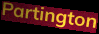
Partington